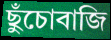
ছুঁচোবাজি